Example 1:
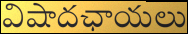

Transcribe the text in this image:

విషాదఛాయలు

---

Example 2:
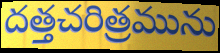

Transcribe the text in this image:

దత్తచరిత్రమును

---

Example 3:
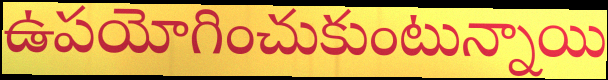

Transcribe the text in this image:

ఉపయోగించుకుంటున్నాయి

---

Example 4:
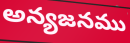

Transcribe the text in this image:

అన్యజనము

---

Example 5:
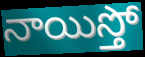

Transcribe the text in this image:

నాయిస్తో